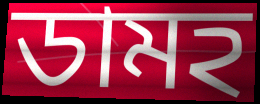
ডামহ